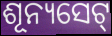
ଶୂନ୍ୟସେଟ୍